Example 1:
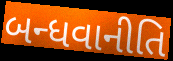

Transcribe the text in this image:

બન્ધવાનીતિ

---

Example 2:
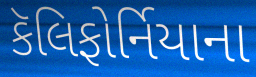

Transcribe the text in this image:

કૅલિફોર્નિયાના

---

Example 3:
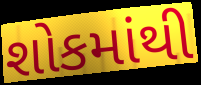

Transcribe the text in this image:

શોકમાંથી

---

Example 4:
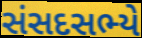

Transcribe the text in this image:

સંસદસભ્યે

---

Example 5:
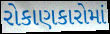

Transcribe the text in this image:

રોકાણકારોમાં